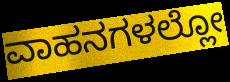
ವಾಹನಗಳಲ್ಲೋ